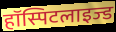
हॉस्पिटलाइज्ड